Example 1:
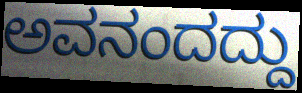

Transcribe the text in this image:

ಅವನಂದದ್ದು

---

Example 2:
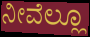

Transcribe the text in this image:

ನೀವೆಲ್ಲೂ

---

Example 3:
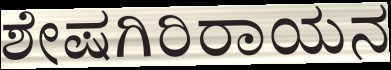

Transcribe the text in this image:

ಶೇಷಗಿರಿರಾಯನ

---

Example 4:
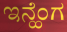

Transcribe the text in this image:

ಇನ್ಹೆಂಗ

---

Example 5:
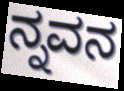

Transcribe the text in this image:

ನ್ನವನ